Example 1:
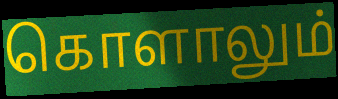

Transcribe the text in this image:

கொளாலும்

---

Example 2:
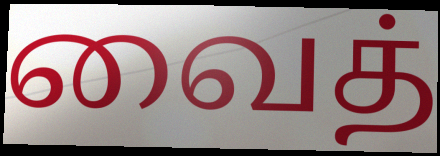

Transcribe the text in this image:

வைத்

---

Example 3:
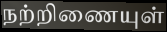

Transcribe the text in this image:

நற்றிணையுள்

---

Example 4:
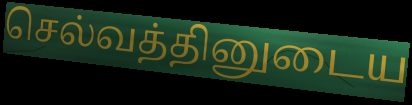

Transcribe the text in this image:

செல்வத்தினுடைய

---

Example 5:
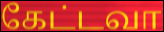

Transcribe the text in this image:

கேட்டவா